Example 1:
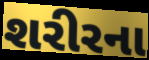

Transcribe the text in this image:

શરીરના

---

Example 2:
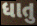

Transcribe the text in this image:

ધાતુ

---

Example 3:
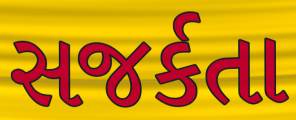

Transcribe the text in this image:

સજર્કતા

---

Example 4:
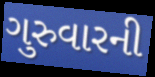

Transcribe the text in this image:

ગુરુવારની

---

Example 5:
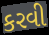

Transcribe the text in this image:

કરવી